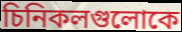
চিনিকলগুলোকে